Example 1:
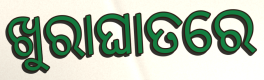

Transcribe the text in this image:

ଖୁରାଘାତରେ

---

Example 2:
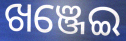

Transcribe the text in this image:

ଖଞ୍ଜେଇ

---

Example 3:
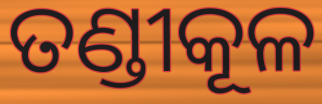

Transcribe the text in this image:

ତଣ୍ଡୀକୂଳ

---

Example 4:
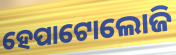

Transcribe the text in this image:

ହେପାଟୋଲୋଜି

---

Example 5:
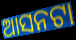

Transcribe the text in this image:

ଆସନଟା